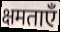
क्षमताएँ